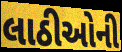
લાઠીઓની